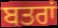
ਬਤਰਾਂ